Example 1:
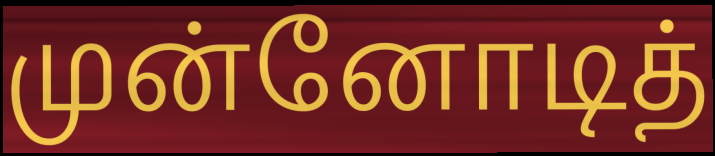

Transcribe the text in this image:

முன்னோடித்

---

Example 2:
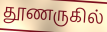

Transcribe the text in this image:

தூணருகில்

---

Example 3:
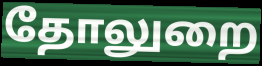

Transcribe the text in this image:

தோலுறை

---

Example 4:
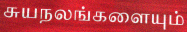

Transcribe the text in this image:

சுயநலங்களையும்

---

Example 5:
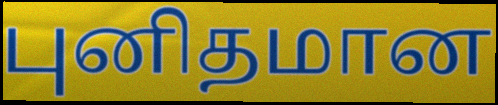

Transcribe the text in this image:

புனிதமான